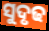
ସୁଦୃଢ